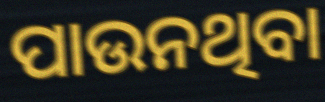
ପାଉନଥିବା